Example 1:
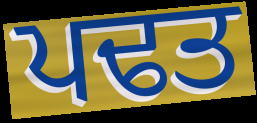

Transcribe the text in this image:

ਪਢਤ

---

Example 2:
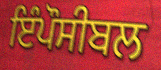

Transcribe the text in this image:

ਇੰਪੌਸੀਬਲ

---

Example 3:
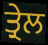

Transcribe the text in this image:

ਤ੍ਰੇਲ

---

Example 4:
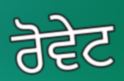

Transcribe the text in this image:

ਰੋਵੇਟ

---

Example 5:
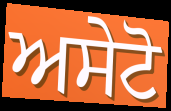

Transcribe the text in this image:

ਅਸੇਟੋ